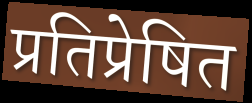
प्रतिप्रेषित